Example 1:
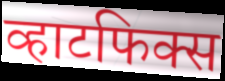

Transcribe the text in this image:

व्हाटफिक्स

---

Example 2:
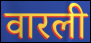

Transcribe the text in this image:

वारली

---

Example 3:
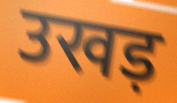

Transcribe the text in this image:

उखड़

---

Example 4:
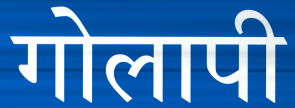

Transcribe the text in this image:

गोलापी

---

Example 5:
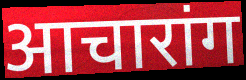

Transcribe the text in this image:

आचारांग